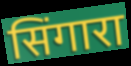
सिंगारा